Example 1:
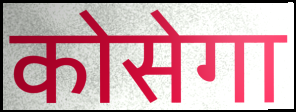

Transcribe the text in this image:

कोसेगा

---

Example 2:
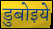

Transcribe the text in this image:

डुबोइये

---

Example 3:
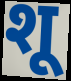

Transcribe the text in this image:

शू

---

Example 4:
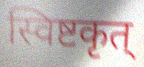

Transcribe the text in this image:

स्विष्टकृत्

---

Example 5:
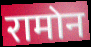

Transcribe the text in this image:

रामोन